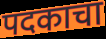
पदकाचा